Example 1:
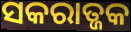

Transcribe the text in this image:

ସକରାତ୍ଜକ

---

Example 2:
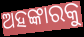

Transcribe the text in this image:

ଅହଙ୍କାରକୁ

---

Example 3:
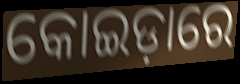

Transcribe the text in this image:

କୋଇଡ଼ାରେ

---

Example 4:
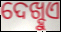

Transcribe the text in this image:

ଦେଖ୍ହୁଏ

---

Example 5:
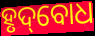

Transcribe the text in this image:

ହୃଦ୍‌ବୋଧ